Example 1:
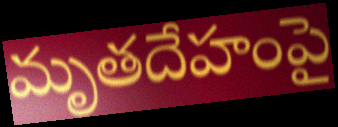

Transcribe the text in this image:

మృతదేహంపై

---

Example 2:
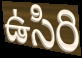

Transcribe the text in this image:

ఉసిరి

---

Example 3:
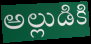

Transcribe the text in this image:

అల్లుడికి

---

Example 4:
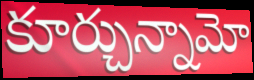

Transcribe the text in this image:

కూర్చున్నామో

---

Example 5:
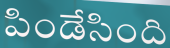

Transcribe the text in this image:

పిండేసింది